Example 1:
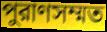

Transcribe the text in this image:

পুরাণসম্মত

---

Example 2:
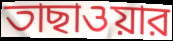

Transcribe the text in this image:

তাছাওয়ার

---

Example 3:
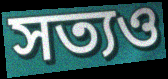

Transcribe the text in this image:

সত্যও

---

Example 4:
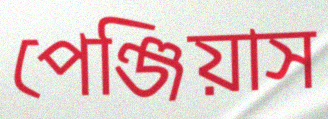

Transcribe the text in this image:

পেঞ্জিয়াস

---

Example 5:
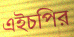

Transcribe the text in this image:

এইচপির